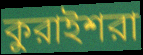
কুরাইশরা